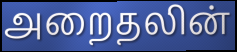
அறைதலின்